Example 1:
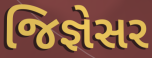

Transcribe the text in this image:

જિજ્ઞેસર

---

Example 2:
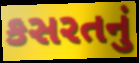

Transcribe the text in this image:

કસરતનું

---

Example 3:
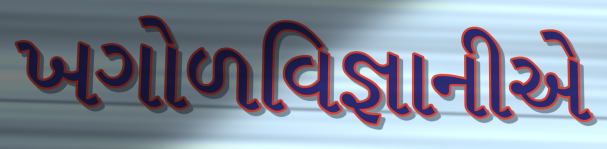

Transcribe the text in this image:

ખગોળવિજ્ઞાનીએ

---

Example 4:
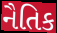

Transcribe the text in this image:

નૈતિક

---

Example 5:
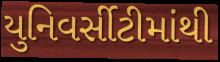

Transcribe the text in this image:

યુનિવર્સીટીમાંથી